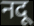
नदू